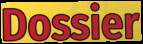
Dossier